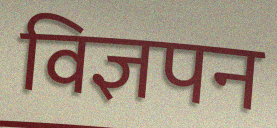
विज्ञपन